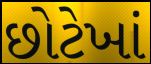
છોટેખાં